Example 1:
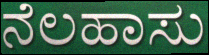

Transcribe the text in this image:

ನೆಲಹಾಸು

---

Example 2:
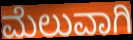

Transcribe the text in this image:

ಮೆಲುವಾಗಿ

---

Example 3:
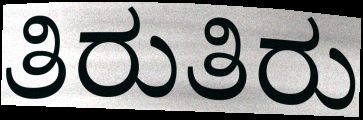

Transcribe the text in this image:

ತಿರುತಿರು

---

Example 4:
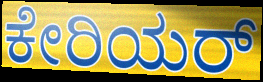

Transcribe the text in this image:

ಕೇರಿಯರ್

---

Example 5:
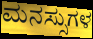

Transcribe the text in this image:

ಮನಸ್ಸುಗಳ